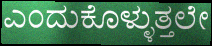
ಎಂದುಕೊಳ್ಳುತ್ತಲೇ